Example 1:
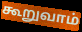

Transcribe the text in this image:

கூறுவாம்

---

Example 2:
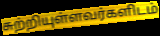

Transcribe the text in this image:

சுற்றியுள்ளவர்களிடம்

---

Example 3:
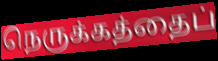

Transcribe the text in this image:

நெருக்கத்தைப்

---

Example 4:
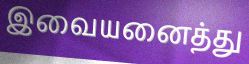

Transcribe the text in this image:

இவையனைத்து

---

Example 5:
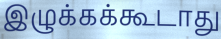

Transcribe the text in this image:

இழுக்கக்கூடாது